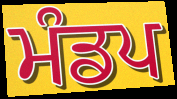
ਮੰਡਪ